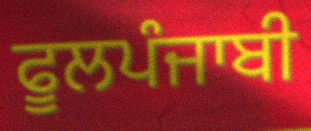
ਫੂਲਪੰਜਾਬੀ